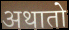
अथातो